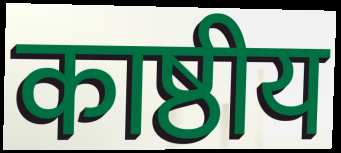
काष्ठीय